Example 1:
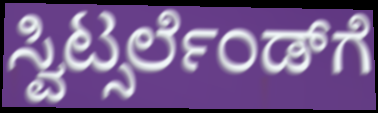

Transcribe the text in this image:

ಸ್ವಿಟ್ಸರ್ಲೆಂಡ್‌ಗೆ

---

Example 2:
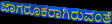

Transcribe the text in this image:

ಜಾಗರೂಕರಾಗಿರುವಂತೆ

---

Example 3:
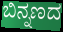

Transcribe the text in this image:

ಬಿನ್ನಣದ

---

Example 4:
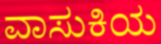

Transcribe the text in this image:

ವಾಸುಕಿಯ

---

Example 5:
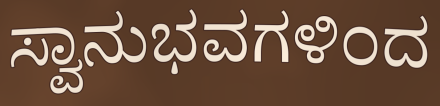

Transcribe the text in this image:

ಸ್ವಾನುಭವಗಳಿಂದ